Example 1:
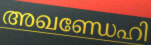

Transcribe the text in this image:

അഖണ്ഡേഹി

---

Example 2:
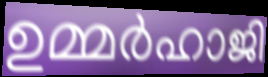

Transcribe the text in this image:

ഉമ്മർഹാജി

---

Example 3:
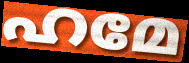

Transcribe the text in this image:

ഹമേ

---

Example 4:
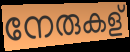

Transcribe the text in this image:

നേരുകള്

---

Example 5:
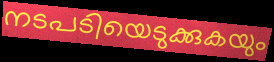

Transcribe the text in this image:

നടപടിയെടുക്കുകയും